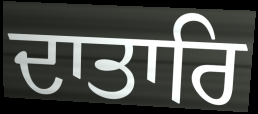
ਦਾਤਾਰਿ